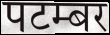
पटम्बर